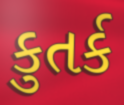
કુતર્ક